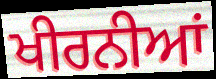
ਖੀਰਨੀਆਂ